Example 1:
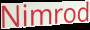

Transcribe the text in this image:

Nimrod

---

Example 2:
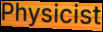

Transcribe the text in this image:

Physicist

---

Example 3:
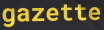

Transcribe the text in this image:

gazette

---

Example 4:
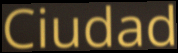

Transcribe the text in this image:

Ciudad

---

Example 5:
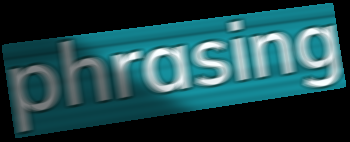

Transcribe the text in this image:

phrasing